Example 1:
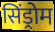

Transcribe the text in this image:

सिंड्रोम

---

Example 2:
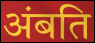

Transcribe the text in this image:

अंबति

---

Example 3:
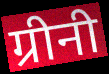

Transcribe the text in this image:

ग्रीनी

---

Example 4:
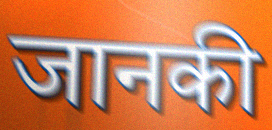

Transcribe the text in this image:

जानकी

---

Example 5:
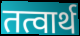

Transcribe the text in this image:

तत्वार्थ